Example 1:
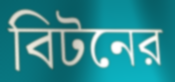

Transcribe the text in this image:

বিটনের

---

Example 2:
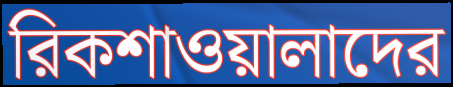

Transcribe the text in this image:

রিকশাওয়ালাদের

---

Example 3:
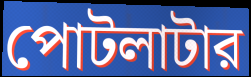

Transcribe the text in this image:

পোটলাটার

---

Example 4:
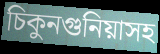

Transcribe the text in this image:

চিকুনগুনিয়াসহ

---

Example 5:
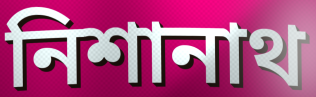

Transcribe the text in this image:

নিশানাথ